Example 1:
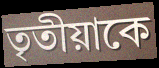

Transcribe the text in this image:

তৃতীয়াকে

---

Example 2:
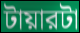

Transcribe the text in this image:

টায়ারটা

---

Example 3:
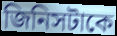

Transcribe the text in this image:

জিনিসটাকে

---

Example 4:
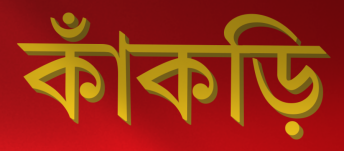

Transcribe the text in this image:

কাঁকড়ি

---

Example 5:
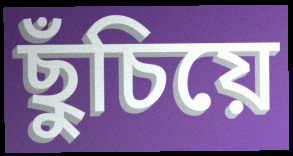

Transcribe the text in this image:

ছুঁচিয়ে